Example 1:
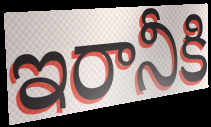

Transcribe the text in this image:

ఇరానీకి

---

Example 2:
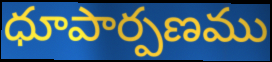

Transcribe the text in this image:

ధూపార్పణము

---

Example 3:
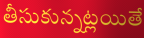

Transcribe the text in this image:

తీసుకున్నట్లయితే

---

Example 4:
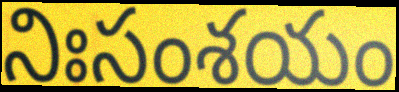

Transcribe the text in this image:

నిఃసంశయం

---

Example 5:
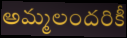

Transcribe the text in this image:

అమ్మలందరికీ